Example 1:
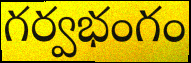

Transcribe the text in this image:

గర్వభంగం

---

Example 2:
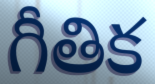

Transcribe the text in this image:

గీతిక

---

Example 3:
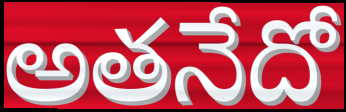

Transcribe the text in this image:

అతనేదో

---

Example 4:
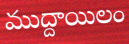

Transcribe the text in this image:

ముద్దాయిలం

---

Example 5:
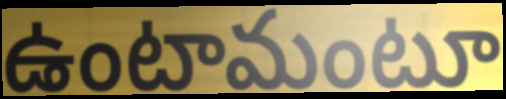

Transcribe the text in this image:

ఉంటామంటూ